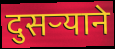
दुसऱ्याने